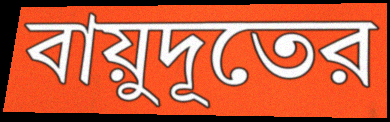
বায়ুদূতের